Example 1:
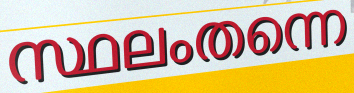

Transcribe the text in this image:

സ്ഥലംതന്നെ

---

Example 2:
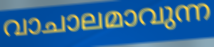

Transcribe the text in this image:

വാചാലമാവുന്ന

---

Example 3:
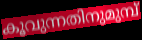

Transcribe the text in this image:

കൂവുന്നതിനുമുമ്പ്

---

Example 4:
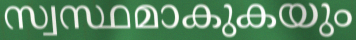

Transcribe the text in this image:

സ്വസ്ഥമാകുകയും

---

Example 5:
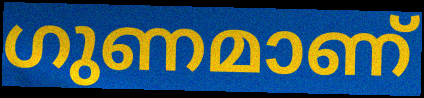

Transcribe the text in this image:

ഗുണമാണ്